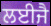
ਲਈਜੈ